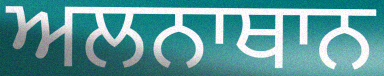
ਅਲਨਾਥਾਨ